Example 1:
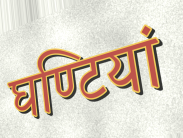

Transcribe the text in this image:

घण्टियां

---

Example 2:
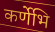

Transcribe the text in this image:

कर्णेभि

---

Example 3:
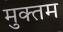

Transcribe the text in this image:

मुक्तम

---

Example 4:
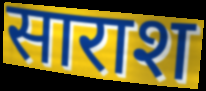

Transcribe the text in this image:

साराश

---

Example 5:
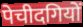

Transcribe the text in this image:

पेचीदगियों